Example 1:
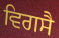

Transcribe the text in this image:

ਵਿਗਸੈ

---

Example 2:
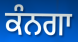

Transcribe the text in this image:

ਕੰਨਗਾ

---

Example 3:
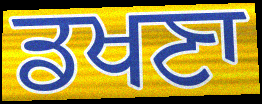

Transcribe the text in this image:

ਡਖਣਾ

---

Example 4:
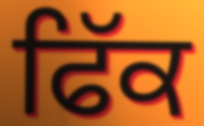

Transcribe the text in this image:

ਫਿੱਕ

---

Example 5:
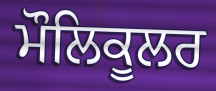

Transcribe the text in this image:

ਮੌਲਿਕੂਲਰ